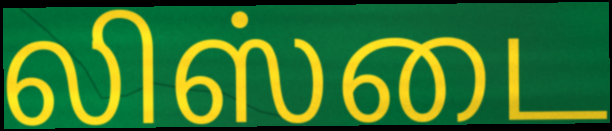
லிஸ்டை